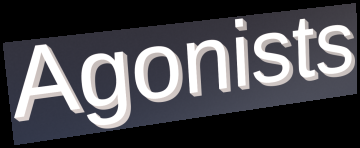
Agonists